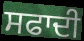
ਸਫਾਦੀ